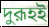
দুরূহই